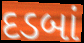
દડબાં